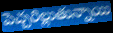
పెచ్చరిల్లుతున్నాయి